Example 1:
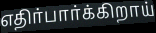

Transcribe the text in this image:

எதிர்பார்க்கிறாய்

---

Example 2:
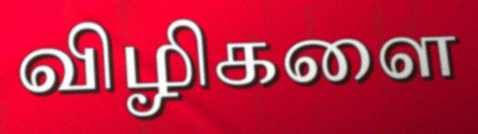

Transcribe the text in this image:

விழிகளை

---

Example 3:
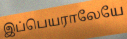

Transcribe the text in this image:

இப்பெயராலேயே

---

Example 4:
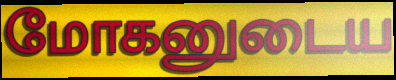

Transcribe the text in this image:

மோகனுடைய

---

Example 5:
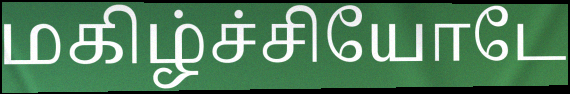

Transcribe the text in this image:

மகிழ்ச்சியோடே